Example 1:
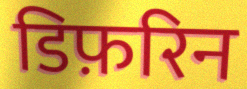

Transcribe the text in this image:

डिफ़रिन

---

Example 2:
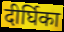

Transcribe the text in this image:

दीर्घिका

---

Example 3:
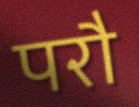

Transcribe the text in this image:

परौ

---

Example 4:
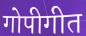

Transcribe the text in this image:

गोपीगीत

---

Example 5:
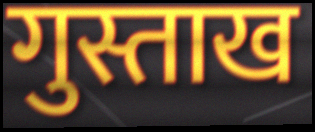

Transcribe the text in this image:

गुस्ताख